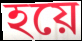
হয়ে